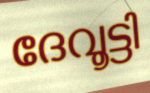
ദേവൂട്ടി